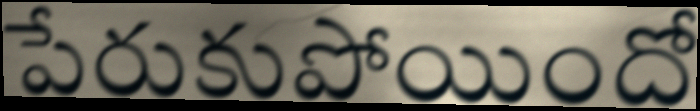
పేరుకుపోయిందో